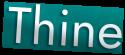
Thine